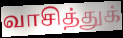
வாசித்துக்